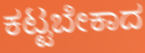
ಕಟ್ಟಬೇಕಾದ